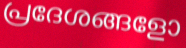
പ്രദേശങ്ങളോ